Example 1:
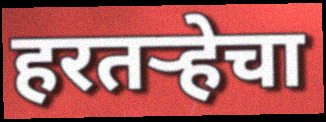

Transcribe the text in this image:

हरतऱ्हेचा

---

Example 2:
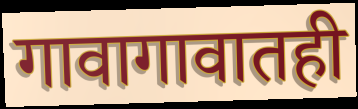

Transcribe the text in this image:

गावागावातही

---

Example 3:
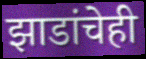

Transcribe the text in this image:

झाडांचेही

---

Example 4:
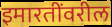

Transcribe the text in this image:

इमारतींवरील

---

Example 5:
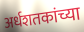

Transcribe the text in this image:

अर्धशतकांच्या